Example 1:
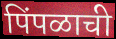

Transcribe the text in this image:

पिंपळाची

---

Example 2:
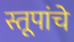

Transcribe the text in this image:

स्तूपांचे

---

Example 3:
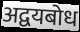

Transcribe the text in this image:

अद्वयबोध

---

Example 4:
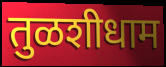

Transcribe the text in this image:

तुळशीधाम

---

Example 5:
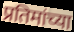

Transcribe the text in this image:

प्रतिमांच्या